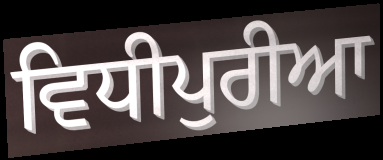
ਵਿਧੀਪੁਰੀਆ